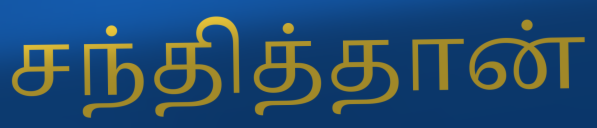
சந்தித்தான்